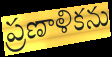
ప్రణాళికను